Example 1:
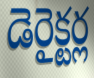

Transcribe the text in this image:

డెరైక్టర్ల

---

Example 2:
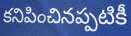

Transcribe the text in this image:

కనిపించినప్పటికీ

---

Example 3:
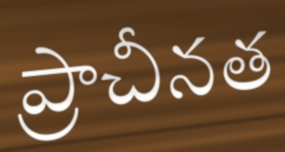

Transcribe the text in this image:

ప్రాచీనత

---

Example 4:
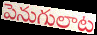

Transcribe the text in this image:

పెనుగులాట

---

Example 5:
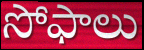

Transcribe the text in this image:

సోఫాలు